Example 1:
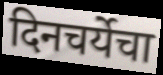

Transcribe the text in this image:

दिनचर्येचा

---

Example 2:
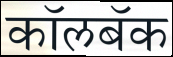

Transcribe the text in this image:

कॉलबॅक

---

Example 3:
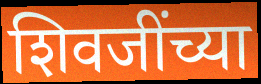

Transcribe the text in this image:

शिवजींच्या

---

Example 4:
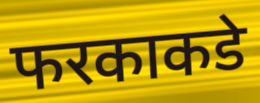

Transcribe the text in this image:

फरकाकडे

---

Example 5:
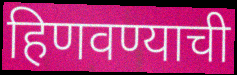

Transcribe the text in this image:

हिणवण्याची